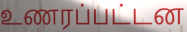
உணரப்பட்டன